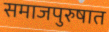
समाजपुरुषात